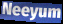
Neeyum